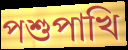
পশুপাখি